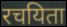
रचयिता